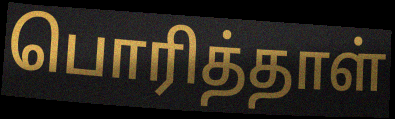
பொரித்தாள்